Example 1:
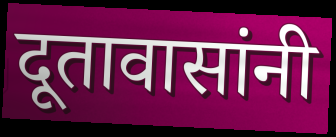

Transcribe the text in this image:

दूतावासांनी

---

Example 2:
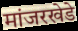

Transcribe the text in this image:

मांजरखेडे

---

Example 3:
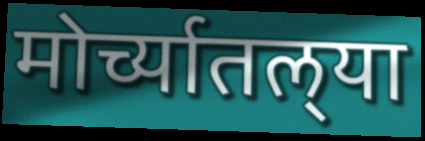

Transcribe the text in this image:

मोर्च्यातल्या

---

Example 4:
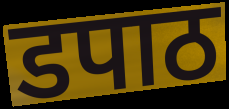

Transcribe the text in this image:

डपाठ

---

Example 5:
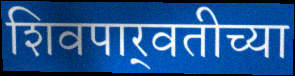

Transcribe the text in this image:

शिवपार्वतीच्या